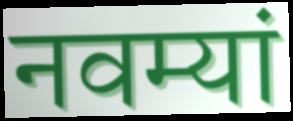
नवम्यां